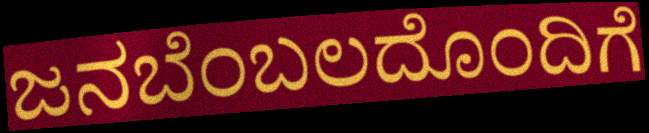
ಜನಬೆಂಬಲದೊಂದಿಗೆ